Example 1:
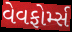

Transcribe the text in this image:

વેવફોર્મ્સ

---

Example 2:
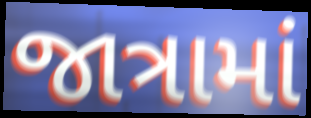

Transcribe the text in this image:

જાત્રામાં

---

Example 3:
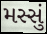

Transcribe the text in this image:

મસ્સું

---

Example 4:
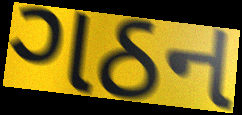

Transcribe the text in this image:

ગઠન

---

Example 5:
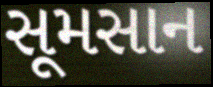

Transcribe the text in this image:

સૂમસાન